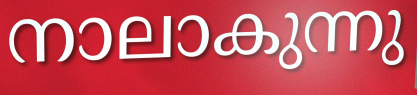
നാലാകുന്നു